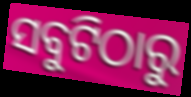
ସବୁଟିଠାରୁ